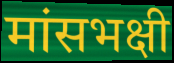
मांसभक्षी